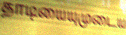
தாடியையுமுடைய